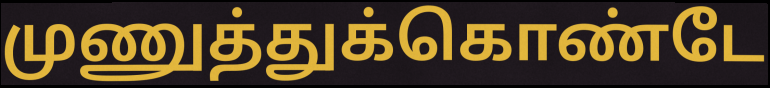
முணுத்துக்கொண்டே